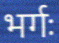
भर्गः